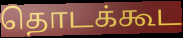
தொடக்கூட